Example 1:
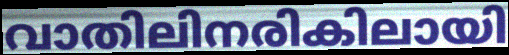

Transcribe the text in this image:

വാതിലിനരികിലായി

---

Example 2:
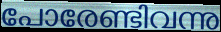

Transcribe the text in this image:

പോരേണ്ടിവന്നു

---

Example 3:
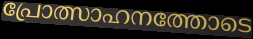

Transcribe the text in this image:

പ്രോത്സാഹനത്തോടെ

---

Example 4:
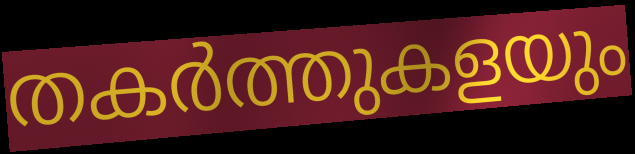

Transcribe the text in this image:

തകർത്തുകളയും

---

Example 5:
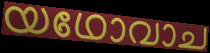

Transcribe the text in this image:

യഥോവാച